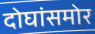
दोघांसमोर